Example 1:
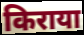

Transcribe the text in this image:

किराया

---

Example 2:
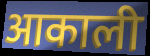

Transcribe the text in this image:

आकाली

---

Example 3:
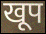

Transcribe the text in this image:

खूप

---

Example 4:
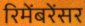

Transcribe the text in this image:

रिमेंबरेंसर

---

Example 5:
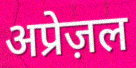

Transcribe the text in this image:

अप्रेज़ल